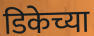
डिकेच्या